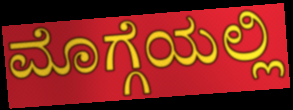
ಮೊಗ್ಗೆಯಲ್ಲಿ